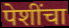
पेशींचा